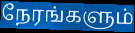
நேரங்களும்